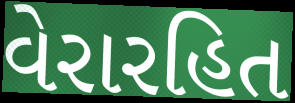
વેરારહિત